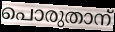
പൊരുതാന്